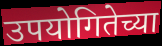
उपयोगितेच्या